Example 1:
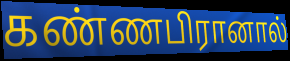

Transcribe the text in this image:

கண்ணபிரானால்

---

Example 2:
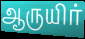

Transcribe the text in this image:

ஆருயிர்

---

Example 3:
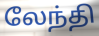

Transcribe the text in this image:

லேந்தி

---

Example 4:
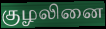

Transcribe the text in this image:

குழலினை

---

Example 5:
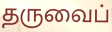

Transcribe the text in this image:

தருவைப்